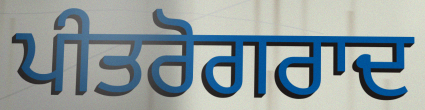
ਪੀਤਰੋਗਰਾਦ